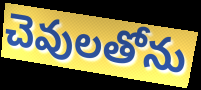
చెవులతోను